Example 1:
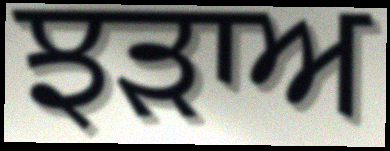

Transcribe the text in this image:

ਝੜਾਅ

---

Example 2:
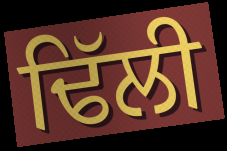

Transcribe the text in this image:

ਢਿੱਲੀ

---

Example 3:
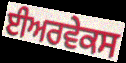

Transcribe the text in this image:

ਈਅਰਵੇਕਸ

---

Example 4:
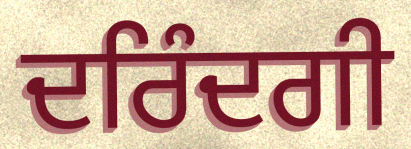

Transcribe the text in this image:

ਦਰਿੰਦਗੀ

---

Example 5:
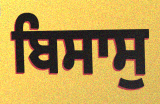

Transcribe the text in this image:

ਬਿਸਾਸੁ